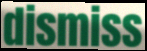
dismiss